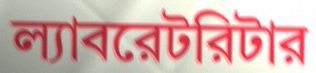
ল্যাবরেটরিটার